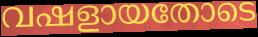
വഷളായതോടെ